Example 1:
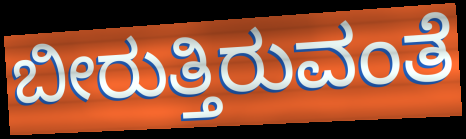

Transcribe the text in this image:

ಬೀರುತ್ತಿರುವಂತೆ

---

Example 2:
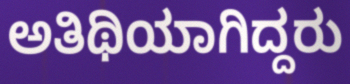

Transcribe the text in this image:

ಅತಿಥಿಯಾಗಿದ್ದರು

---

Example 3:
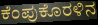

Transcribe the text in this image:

ಕೆಂಪುಕೊರಳಿನ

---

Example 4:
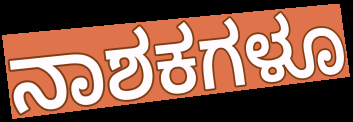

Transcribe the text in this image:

ನಾಶಕಗಳೂ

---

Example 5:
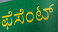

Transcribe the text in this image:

ಫೆಸೆಂಟ್